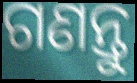
ଗଣନ୍ତୁ